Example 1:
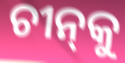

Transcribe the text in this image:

ଚୀନ୍‌କୁ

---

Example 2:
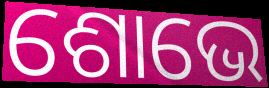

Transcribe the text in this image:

ଶୋଭେ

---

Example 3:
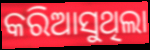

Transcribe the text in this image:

କରିଆସୁଥିଲା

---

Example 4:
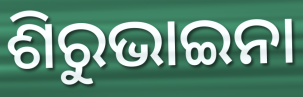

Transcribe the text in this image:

ଶିରୁଭାଇନା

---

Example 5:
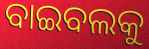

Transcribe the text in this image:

ବାଇବଲକୁ